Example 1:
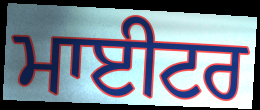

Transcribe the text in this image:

ਮਾਈਟਰ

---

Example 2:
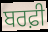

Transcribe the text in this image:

ਬਰਫ਼ੀ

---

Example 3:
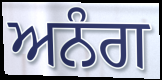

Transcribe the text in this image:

ਅਨੰਗ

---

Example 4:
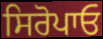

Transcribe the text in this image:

ਸਿਰੋਪਾਓ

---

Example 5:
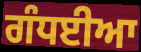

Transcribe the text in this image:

ਗੰਧਈਆ